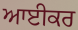
ਆਈਕਰ